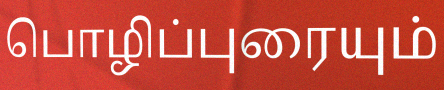
பொழிப்புரையும்